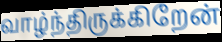
வாழ்ந்திருக்கிறேன்